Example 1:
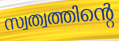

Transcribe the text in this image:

സ്വത്വത്തിന്റെ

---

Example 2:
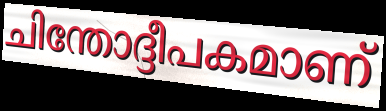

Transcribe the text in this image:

ചിന്തോദ്ദീപകമാണ്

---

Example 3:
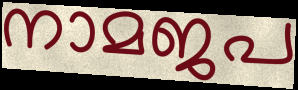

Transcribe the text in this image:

നാമജപ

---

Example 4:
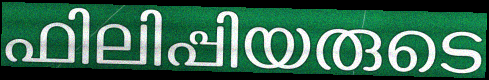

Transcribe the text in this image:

ഫിലിപ്പിയരുടെ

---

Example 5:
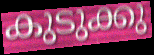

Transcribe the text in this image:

കുടുക്കു